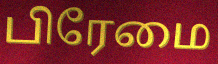
பிரேமை